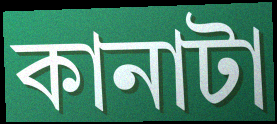
কানাটা